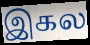
இகல